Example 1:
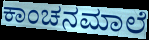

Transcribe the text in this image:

ಕಾಂಚನಮಾಲೆ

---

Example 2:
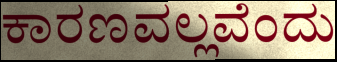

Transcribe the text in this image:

ಕಾರಣವಲ್ಲವೆಂದು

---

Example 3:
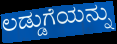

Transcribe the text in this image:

ಲಡ್ಡುಗೆಯನ್ನು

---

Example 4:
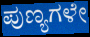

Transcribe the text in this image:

ಪುಣ್ಯಗಳೇ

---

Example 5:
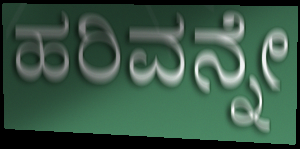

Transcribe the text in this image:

ಹರಿವನ್ನೇ